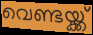
വെണ്ടയ്ക്ക്